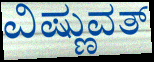
ವಿಷ್ಣುವತ್